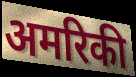
अमरिकी